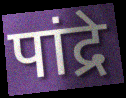
पांद्रे